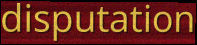
disputation